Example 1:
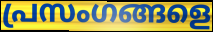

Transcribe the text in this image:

പ്രസംഗങ്ങളെ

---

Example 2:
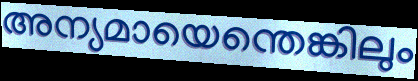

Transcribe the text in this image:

അന്യമായെന്തെങ്കിലും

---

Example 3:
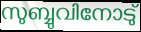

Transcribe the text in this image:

സുബ്ബുവിനോടു്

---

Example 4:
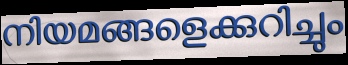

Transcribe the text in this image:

നിയമങ്ങളെക്കുറിച്ചും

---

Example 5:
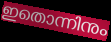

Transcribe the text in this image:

ഇതൊന്നിനും